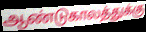
ஆண்டுகாலத்துக்கு